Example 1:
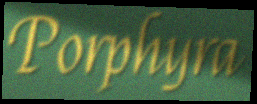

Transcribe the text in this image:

Porphyra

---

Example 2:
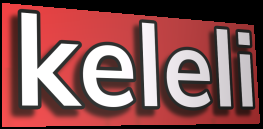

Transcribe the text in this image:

keleli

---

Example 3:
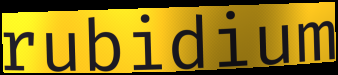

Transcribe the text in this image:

rubidium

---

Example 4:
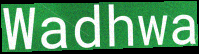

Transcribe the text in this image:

Wadhwa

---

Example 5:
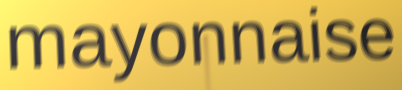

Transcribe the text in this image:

mayonnaise